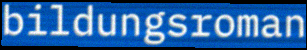
bildungsroman